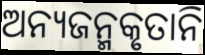
ଅନ୍ଯଜନ୍ମକୃତାନି